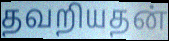
தவறியதன்